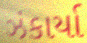
ઝંકાર્યા